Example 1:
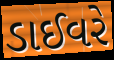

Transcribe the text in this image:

ડાઈવરે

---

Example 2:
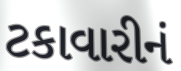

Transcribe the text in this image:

ટકાવારીનં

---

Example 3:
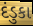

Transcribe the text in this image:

દંડુકા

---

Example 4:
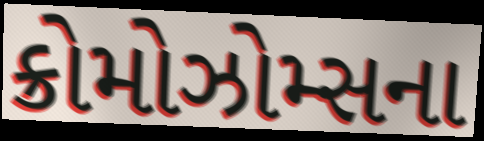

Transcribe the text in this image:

ક્રોમોઝોમ્સના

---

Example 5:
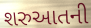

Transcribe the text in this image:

શરુઆતની